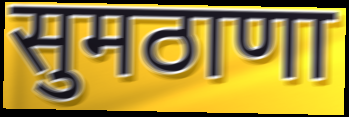
सुमठाणा